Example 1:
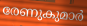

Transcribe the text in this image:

രേണുകുമാർ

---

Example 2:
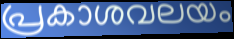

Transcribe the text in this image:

പ്രകാശവലയം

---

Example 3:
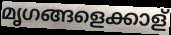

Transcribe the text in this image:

മൃഗങ്ങളെക്കാള്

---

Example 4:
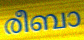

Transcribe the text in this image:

രീബാ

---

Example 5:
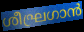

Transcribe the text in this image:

ശീഘ്രഗാൻ